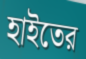
হাইতের